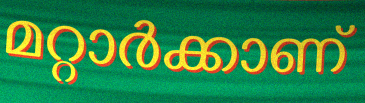
മറ്റാർക്കാണ്